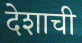
देशाची